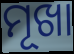
ମୂଖା